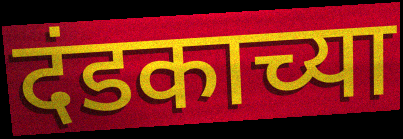
दंडकाच्या